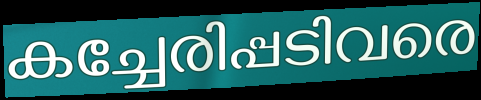
കച്ചേരിപ്പടിവരെ